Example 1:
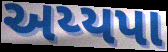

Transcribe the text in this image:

અય્યપા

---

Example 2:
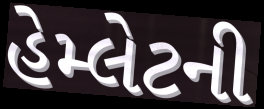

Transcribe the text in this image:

હેમ્લેટની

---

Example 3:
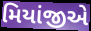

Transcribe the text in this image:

મિયાંજીએ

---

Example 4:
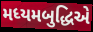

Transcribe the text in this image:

મધ્યમબુદ્ધિએ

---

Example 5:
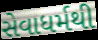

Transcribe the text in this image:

સેવાધર્મથી